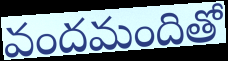
వందమందితో